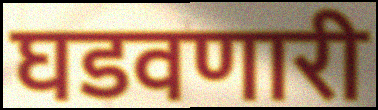
घडवणारी